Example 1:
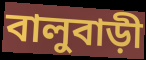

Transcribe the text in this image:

বালুবাড়ী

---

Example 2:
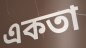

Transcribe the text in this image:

একতা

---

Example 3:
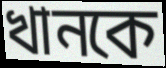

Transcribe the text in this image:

খানকে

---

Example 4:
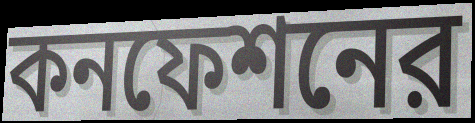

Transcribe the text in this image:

কনফেশনের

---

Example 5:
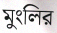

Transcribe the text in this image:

মুংলির